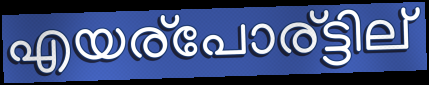
എയര്പോര്ട്ടില്